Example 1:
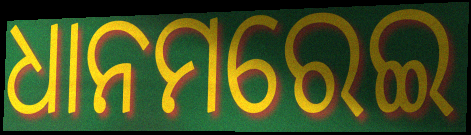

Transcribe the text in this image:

ଧାନମରେଇ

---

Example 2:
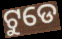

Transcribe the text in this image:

ଟୁଡେ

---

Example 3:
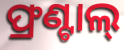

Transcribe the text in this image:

ଫ୍ରଣ୍ଟାଲ୍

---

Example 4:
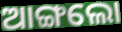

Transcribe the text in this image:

ଆଙ୍ଗଲୋ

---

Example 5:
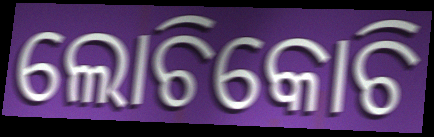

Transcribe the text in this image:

ଲୋଚିକୋଚି